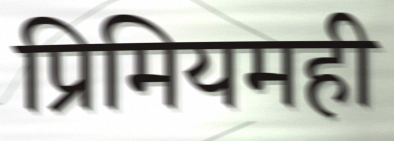
प्रिमियमही